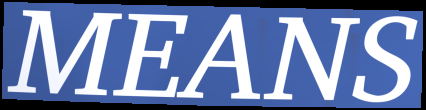
MEANS